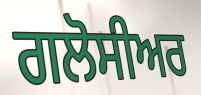
ਗਲੋਸੀਅਰ